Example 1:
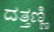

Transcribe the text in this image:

ದತ್ತಣ್ಣಿ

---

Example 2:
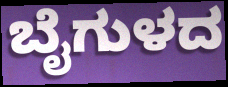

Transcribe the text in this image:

ಬೈಗುಳದ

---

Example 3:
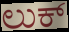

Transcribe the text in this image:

ಲುಕ್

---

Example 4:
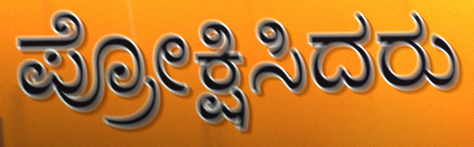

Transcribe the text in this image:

ಪ್ರೋಕ್ಷಿಸಿದರು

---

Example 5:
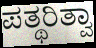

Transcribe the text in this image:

ಪತ್ಥರಿತ್ವಾ